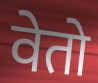
वेतो